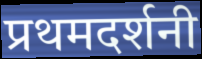
प्रथमदर्शनी